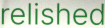
relished